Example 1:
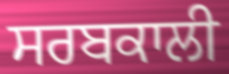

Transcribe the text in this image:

ਸਰਬਕਾਲੀ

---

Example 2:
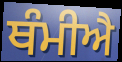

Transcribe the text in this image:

ਥੰਮੀਐ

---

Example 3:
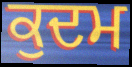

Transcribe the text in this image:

ਕੁਦਮ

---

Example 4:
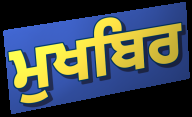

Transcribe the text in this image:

ਮੁਖਬਿਰ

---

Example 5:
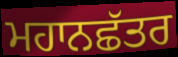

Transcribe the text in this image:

ਮਹਾਨਛੱਤਰ